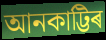
আনকাট্টিৰ